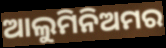
ଆଲୁମିନିଅମର